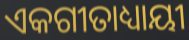
ଏକଗୀତାଧ୍ୟାୟୀ